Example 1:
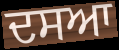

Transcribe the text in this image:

ਦਸਆ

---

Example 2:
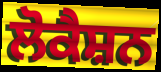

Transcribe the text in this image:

ਲੋਕੈਸ਼ਨ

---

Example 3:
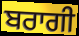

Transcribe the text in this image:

ਬਰਾਗੀ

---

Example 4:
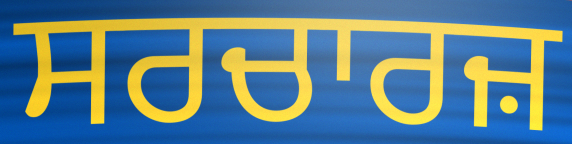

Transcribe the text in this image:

ਸਰਚਾਰਜ਼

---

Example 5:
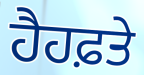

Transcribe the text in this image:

ਹੈਹਫ਼ਤੇ